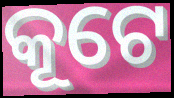
କୂଟେ